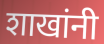
शाखांनी